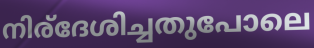
നിര്ദേശിച്ചതുപോലെ